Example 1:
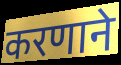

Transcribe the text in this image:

करणाने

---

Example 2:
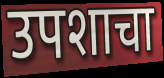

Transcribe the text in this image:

उपशाचा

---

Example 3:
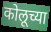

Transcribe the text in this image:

कोलूच्या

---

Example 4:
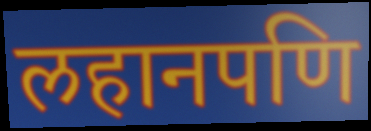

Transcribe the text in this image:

लहानपणि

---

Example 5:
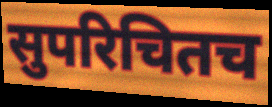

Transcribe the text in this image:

सुपरिचितच